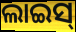
ଲାଇସ୍